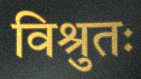
विश्रुतः